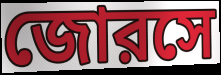
জোরসে